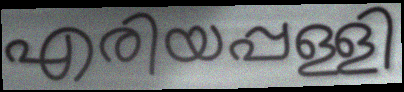
എരിയപ്പള്ളി